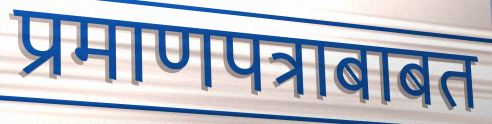
प्रमाणपत्राबाबत